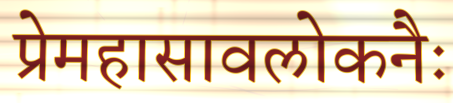
प्रेमहासावलोकनैः